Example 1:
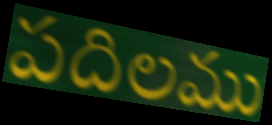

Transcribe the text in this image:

పదిలము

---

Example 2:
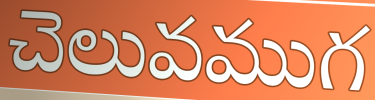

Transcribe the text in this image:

చెలువముగ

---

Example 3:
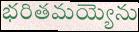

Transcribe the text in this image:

భరితమయ్యెను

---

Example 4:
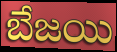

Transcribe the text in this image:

బేజయి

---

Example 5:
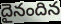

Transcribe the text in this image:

దైనందిన